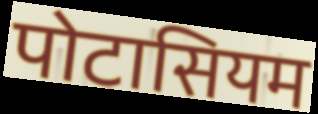
पोटासियम